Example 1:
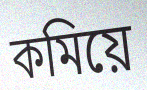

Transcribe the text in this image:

কমিয়ে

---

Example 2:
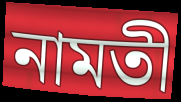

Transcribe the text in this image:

নামতী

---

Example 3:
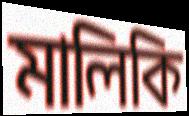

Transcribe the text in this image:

মালিকি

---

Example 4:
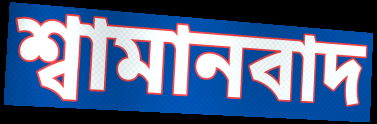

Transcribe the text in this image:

শ্বামানবাদ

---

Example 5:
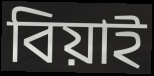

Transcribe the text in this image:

বিয়াই